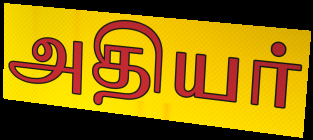
அதியர்